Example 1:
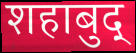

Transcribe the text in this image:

शहाबुद्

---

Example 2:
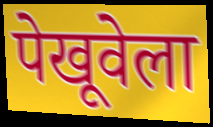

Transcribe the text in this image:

पेखूवेला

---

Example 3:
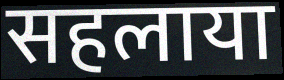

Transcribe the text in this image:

सहलाया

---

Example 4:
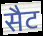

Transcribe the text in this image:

सैट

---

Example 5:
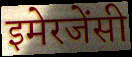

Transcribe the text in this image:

इमेरजेंसी